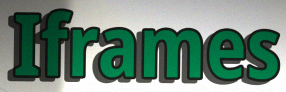
Iframes